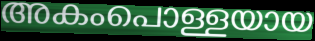
അകംപൊള്ളയായ